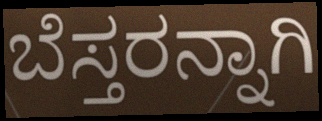
ಬೆಸ್ತರನ್ನಾಗಿ